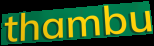
thambu